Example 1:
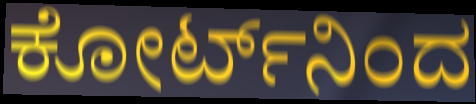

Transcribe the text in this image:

ಕೋರ್ಟ್‌ನಿಂದ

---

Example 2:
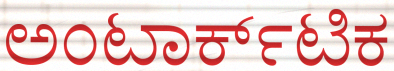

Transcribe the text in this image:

ಅಂಟಾರ್ಕ್‍ಟಿಕ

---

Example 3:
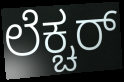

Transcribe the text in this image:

ಲೆಕ್ಚರ್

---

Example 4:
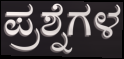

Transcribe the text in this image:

ಪ್ರಶ್ನೆಗಳ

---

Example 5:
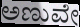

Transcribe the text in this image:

ಅಣುವೇ